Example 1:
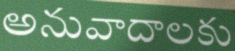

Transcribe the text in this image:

అనువాదాలకు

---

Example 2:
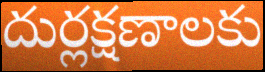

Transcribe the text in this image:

దుర్లక్షణాలకు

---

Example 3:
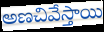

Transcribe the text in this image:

అణచివేస్తాయి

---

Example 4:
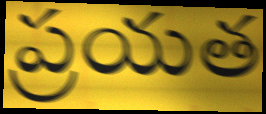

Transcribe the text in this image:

ప్రయత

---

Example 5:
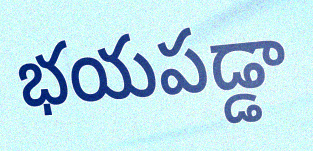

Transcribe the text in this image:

భయపడ్డా